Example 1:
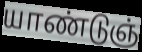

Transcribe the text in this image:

யாண்டுஞ்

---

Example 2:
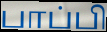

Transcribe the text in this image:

பாப்பி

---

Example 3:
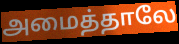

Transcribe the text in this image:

அமைத்தாலே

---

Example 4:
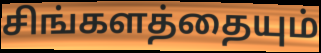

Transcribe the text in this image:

சிங்களத்தையும்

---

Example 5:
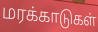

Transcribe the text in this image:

மரக்காடுகள்